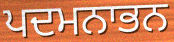
ਪਦਮਨਾਭਨ